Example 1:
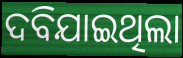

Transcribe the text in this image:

ଦବିଯାଇଥିଲା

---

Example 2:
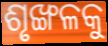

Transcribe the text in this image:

ଶୃଙ୍ଖଳକୁ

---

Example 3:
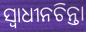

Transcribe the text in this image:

ସ୍ଵାଧୀନଚିନ୍ତା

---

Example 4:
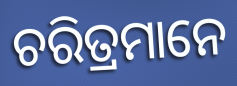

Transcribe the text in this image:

ଚରିତ୍ରମାନେ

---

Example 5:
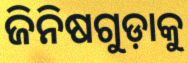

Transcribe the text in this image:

ଜିନିଷଗୁଡ଼ାକୁ